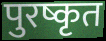
पुरष्कृत